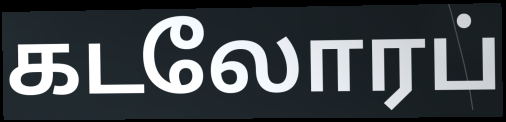
கடலோரப்